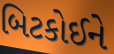
બિટકોઈને